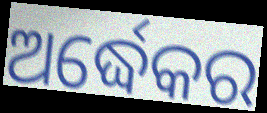
ଅର୍ଦ୍ଧେକର